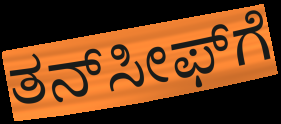
ತನ್‍ಸೀಫ್‍ಗೆ